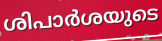
ശിപാർശയുടെ